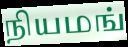
நியமங்